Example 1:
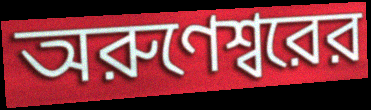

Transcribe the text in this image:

অরুণেশ্বরের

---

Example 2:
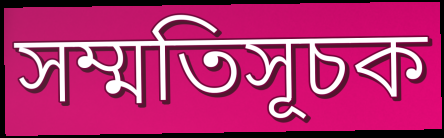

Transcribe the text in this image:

সম্মতিসূচক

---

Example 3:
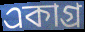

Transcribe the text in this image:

একাগ্র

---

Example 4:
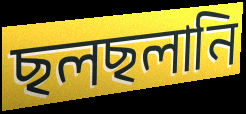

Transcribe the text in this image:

ছলছলানি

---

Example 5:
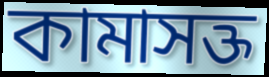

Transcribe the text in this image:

কামাসক্ত